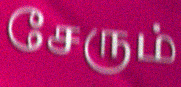
சேரும்